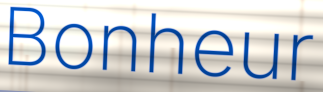
Bonheur